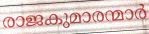
രാജകുമാരന്മാർ